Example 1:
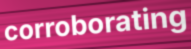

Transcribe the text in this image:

corroborating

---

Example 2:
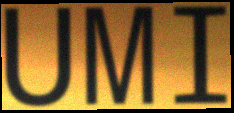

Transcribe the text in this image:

UMI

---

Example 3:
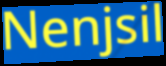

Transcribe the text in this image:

Nenjsil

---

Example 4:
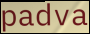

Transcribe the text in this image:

padva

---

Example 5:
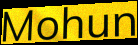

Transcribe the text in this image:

Mohun